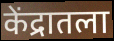
केंद्रातला